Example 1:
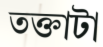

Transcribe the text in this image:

তক্তাটা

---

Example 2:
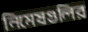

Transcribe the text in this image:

নিমেষগুলির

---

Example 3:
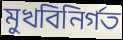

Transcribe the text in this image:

মুখবিনির্গত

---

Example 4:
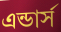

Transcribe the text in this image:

এন্ডার্স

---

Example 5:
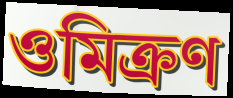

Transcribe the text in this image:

ওমিক্রণ